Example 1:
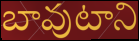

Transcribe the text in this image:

బావుటాని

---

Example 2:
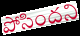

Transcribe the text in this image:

పోసిందని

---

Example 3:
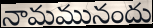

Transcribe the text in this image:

నామమునందు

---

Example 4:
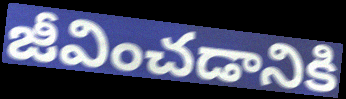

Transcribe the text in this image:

జీవించడానికి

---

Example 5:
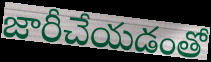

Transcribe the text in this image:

జారీచేయడంతో